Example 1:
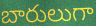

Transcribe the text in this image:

బారులుగా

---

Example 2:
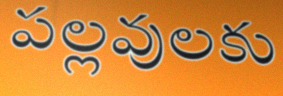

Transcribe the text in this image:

పల్లవులకు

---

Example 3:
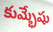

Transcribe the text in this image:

కుమ్భేషు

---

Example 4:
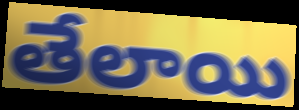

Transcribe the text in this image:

తేలాయి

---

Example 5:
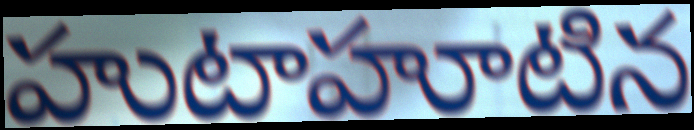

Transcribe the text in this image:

హుటాహూటిన